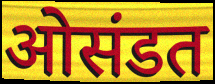
ओसंडत